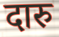
दारु